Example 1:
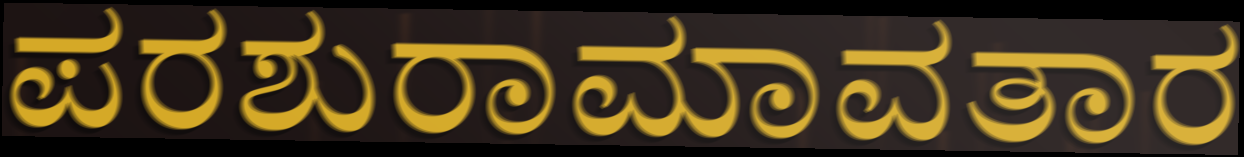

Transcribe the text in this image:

ಪರಶುರಾಮಾವತಾರ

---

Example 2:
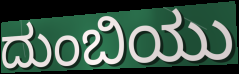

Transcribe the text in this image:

ದುಂಬಿಯು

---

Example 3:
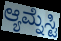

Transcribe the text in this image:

ಆ್ಯಮ್ನೆಸ್ಟಿ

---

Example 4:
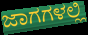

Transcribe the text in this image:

ಜಾಗಗಳಲ್ಲಿ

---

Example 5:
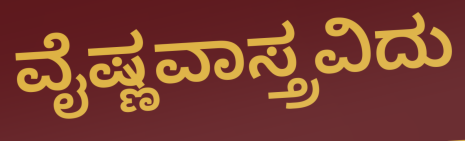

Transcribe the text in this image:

ವೈಷ್ಣವಾಸ್ತ್ರವಿದು